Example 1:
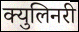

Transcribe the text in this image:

क्युलिनरी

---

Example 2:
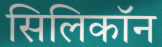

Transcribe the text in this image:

सिलिकॉन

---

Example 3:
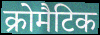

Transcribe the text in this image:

क्रोमैटिक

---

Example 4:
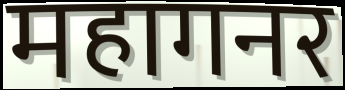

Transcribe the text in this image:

महागनर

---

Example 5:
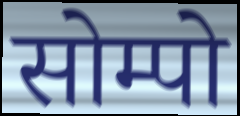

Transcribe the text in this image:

सोम्पो